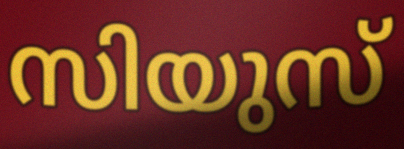
സിയുസ്